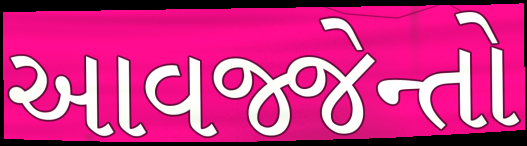
આવજ્જેન્તો